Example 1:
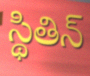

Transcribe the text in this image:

స్థితిన్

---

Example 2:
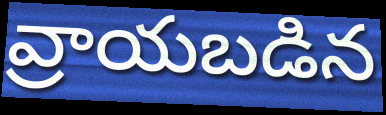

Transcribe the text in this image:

వ్రాయబడిన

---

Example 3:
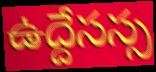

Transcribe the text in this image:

ఉద్దేసస్స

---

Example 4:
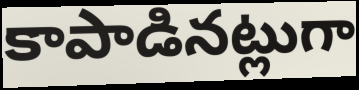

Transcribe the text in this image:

కాపాడినట్లుగా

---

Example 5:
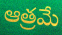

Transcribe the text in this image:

ఆత్రమే